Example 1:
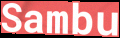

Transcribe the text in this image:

Sambu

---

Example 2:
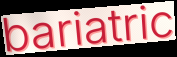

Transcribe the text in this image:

bariatric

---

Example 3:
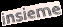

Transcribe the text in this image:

insieme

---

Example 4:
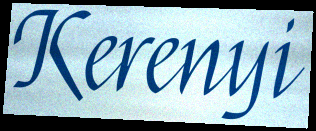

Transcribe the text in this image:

Kerenyi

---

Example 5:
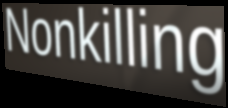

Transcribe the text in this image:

Nonkilling